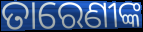
ତାରେଣୀଙ୍କ